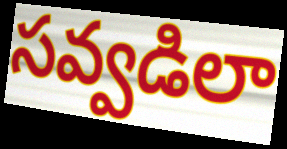
సవ్వడిలా